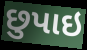
છુપાઇ